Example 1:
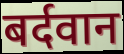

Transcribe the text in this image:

बर्दवान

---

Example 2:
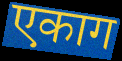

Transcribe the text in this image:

एकाग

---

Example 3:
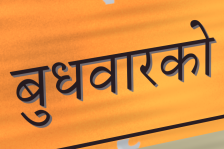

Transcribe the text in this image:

बुधवारको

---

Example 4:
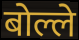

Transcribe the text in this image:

बोल्ले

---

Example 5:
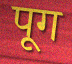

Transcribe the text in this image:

पूग